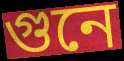
গুনে